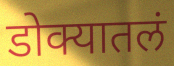
डोक्यातलं